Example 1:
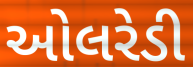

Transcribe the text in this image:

ઓલરેડી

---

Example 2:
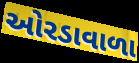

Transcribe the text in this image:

ઓરડાવાળા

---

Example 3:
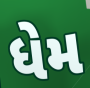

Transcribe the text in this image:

ધેમ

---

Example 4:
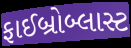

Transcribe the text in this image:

ફાઈબ્રોબ્લાસ્ટ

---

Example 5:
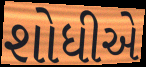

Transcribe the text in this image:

શોધીએ